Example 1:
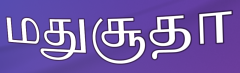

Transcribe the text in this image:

மதுசூதா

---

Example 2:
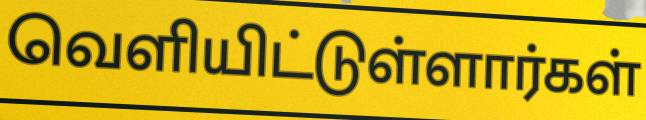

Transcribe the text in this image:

வெளியிட்டுள்ளார்கள்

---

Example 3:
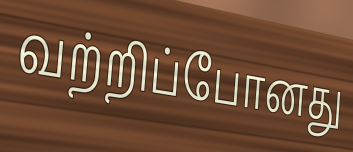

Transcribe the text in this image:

வற்றிப்போனது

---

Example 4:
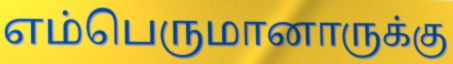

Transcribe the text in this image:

எம்பெருமானாருக்கு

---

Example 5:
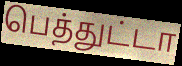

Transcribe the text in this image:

பெத்துட்டா